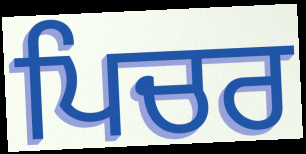
ਪਿਚਰ